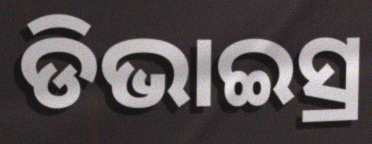
ଡିଭାଇସ୍ର